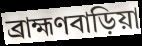
ব্রাহ্মণবাড়িয়া